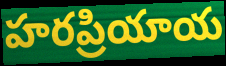
హరప్రియాయ